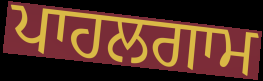
ਪਾਹਲਗਾਮ